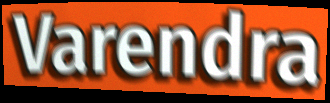
Varendra